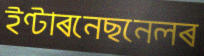
ইণ্টাৰনেছনেলৰ